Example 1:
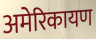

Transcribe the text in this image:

अमेरिकायण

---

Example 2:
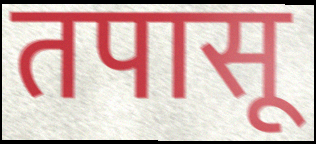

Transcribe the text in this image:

तपासू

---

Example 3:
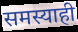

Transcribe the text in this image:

समस्याही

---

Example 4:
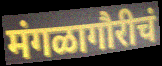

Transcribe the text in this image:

मंगळागौरीचं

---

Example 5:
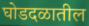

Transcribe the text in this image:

घोडदळातील